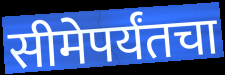
सीमेपर्यंतचा